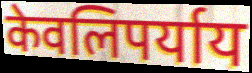
केवलिपर्याय